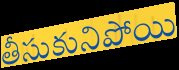
తీసుకునిపోయి